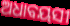
ଅଧାବୟସୀ